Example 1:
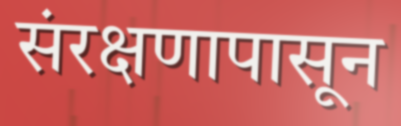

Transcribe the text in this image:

संरक्षणापासून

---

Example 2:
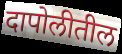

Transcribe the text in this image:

दापोलीतील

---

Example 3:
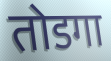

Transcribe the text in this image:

तोडगा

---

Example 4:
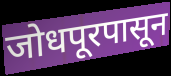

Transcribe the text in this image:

जोधपूरपासून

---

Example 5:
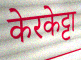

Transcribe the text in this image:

केरकेट्टा